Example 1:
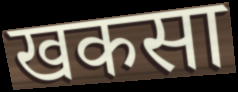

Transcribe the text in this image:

खकसा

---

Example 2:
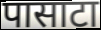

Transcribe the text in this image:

पासाटा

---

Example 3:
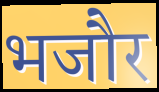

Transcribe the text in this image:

भजौर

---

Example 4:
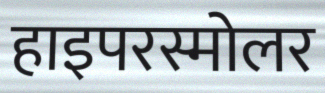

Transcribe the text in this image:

हाइपरस्मोलर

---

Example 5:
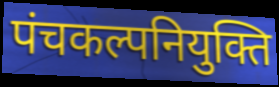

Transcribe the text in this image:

पंचकल्पनियुक्ति